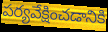
పర్యవేక్షించడానికి